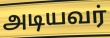
அடியவர்